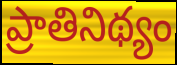
ప్రాతినిథ్యం